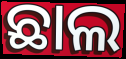
ଛାଲ